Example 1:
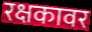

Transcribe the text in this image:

रक्षकावर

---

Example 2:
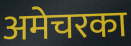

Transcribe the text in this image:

अमेचरका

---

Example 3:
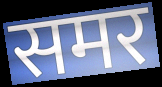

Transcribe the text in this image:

समर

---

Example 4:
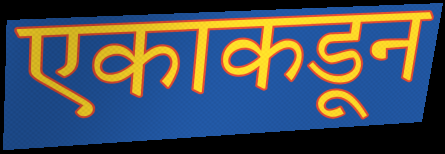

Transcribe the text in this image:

एकाकडून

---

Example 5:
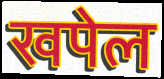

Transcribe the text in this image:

खपेल